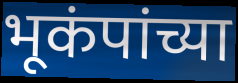
भूकंपांच्या